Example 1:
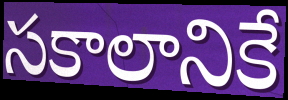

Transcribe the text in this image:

సకాలానికే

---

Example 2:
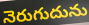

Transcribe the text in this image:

నెరుగుదును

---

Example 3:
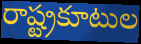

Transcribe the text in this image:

రాష్ట్రకూటుల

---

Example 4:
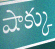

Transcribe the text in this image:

షాక్కు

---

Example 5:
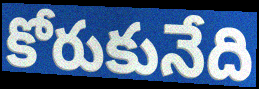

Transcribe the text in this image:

కోరుకునేది